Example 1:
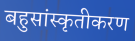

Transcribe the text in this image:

बहुसांस्कृतीकरण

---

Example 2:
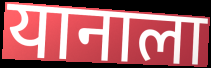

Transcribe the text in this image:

यानाला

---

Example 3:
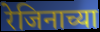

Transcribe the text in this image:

रेजिनाच्या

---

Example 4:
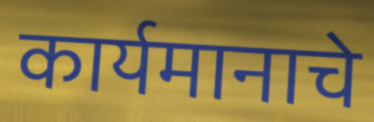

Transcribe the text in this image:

कार्यमानाचे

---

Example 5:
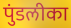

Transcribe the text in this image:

पुंडलीका